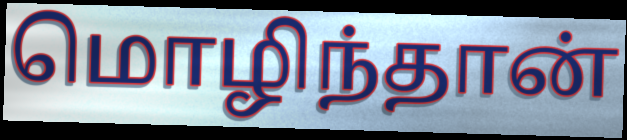
மொழிந்தான்